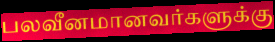
பலவீனமானவர்களுக்கு